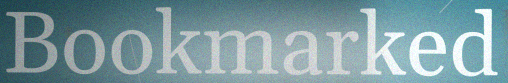
Bookmarked